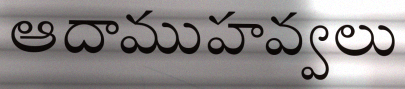
ఆదాముహవ్వలు